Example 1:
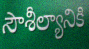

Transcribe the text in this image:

సౌశీల్యానికి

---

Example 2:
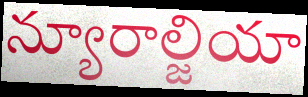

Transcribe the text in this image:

న్యూరాల్జియా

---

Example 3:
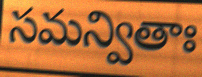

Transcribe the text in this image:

సమన్వితాః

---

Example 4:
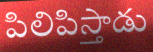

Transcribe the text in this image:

పిలిపిస్తాడు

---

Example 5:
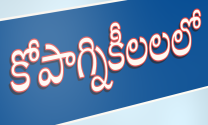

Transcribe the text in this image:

కోపాగ్నికీలలలో